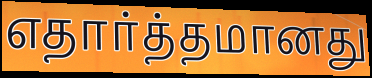
எதார்த்தமானது